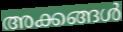
അക്കങ്ങൾ